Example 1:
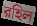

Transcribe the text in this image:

রহিল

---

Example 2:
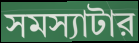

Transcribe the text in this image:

সমস্যাটার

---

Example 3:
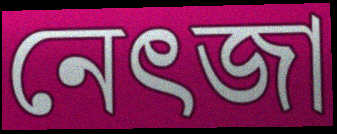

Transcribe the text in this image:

নেৎজা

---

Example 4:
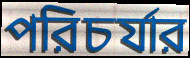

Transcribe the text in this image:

পরিচর্যার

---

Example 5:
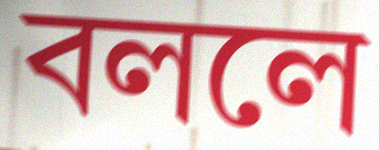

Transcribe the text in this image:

বললে